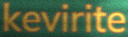
kevirite